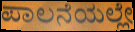
ಪಾಲನೆಯಲ್ಲೇ